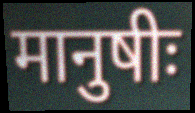
मानुषीः